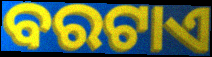
ବରଟାଏ